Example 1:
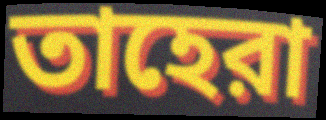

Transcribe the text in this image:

তাহেরা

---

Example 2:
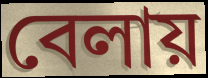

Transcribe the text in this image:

বেলায়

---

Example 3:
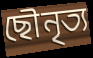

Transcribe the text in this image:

ছৌনৃত্য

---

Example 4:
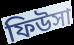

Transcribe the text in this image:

ফিউসা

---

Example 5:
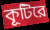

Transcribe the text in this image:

কূটিরে